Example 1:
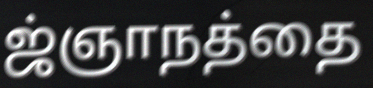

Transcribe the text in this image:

ஜ்ஞாநத்தை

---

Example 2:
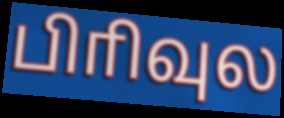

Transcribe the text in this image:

பிரிவுல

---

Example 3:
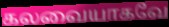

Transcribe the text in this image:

கலவையாகவே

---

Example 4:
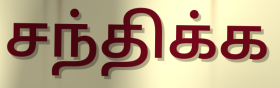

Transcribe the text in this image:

சந்திக்க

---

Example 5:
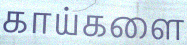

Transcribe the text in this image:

காய்களை